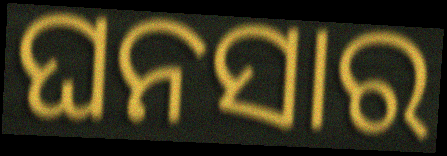
ଘନସାର